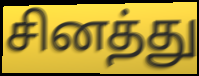
சினத்து